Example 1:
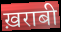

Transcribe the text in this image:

ख़राबी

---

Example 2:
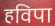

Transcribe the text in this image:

हविपा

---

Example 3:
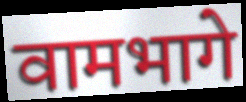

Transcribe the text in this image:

वामभागे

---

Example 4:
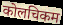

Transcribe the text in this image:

कोलचिकम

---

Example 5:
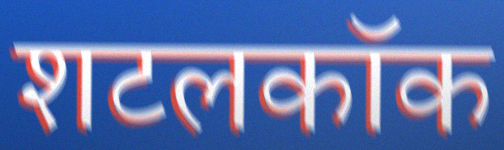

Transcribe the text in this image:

शटलकॉक